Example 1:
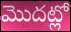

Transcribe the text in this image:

మొదట్లో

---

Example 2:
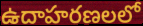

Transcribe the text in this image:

ఉదాహరణలలో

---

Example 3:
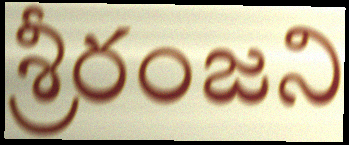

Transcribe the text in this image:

శ్రీరంజని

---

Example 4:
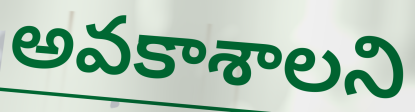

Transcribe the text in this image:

అవకాశాలని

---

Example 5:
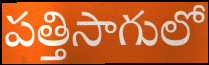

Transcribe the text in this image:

పత్తిసాగులో